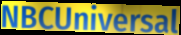
NBCUniversal